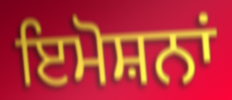
ਇਮੋਸ਼ਨਾਂ